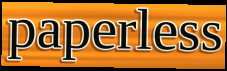
paperless